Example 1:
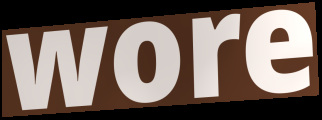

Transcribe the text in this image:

wore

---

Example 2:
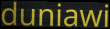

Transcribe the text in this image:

duniawi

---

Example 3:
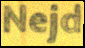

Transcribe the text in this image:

Nejd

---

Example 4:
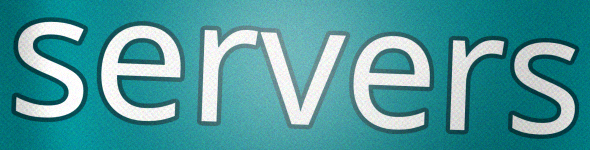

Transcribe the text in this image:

servers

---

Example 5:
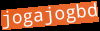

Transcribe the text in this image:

jogajogbd